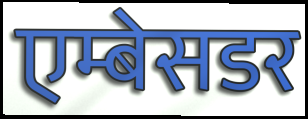
एम्बेसडर